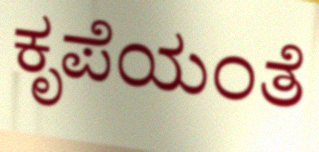
ಕೃಪೆಯಂತೆ